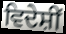
ਵਿਦੇਸ਼ੀਂ